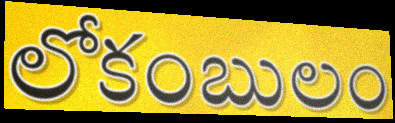
లోకంబులం